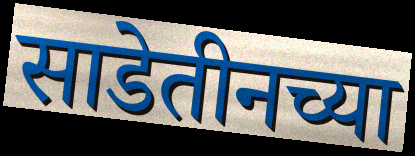
साडेतीनच्या